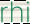
rhi